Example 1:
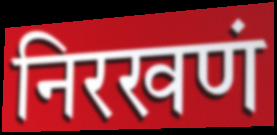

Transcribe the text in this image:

निरखणं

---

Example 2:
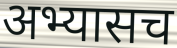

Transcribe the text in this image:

अभ्यासच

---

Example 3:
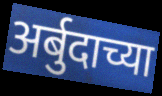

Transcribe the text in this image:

अर्बुदाच्या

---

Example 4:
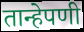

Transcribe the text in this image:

तान्हेपणी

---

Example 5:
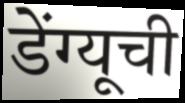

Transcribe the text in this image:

डेंग्यूची